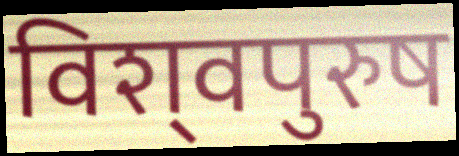
विश्वपुरुष